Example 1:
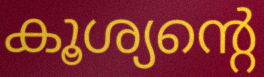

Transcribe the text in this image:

കൂശ്യന്റെ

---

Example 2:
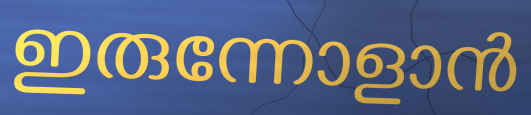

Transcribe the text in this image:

ഇരുന്നോളാൻ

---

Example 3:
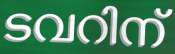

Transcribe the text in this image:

ടവറിന്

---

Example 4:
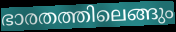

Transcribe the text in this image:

ഭാരതത്തിലെങ്ങും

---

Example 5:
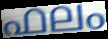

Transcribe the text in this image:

ഫലം